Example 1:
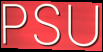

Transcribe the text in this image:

PSU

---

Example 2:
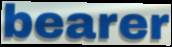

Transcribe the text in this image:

bearer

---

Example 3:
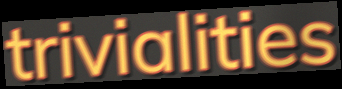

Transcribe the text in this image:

trivialities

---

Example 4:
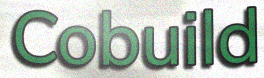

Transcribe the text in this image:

Cobuild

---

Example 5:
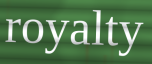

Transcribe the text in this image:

royalty